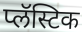
प्लॅस्टिक